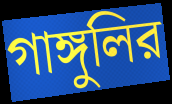
গাঙ্গুলির